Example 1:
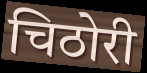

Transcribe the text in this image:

चिठोरी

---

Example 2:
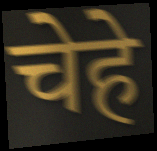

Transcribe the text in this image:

चेहे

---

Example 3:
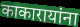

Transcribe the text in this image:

काकारायांना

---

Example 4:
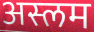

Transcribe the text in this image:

अस्लम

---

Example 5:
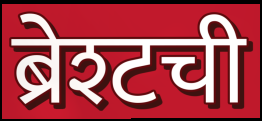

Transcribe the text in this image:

ब्रेश्टची